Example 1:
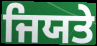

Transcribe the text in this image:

ਜਿਯਤੇ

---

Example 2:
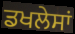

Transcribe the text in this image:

ਡਖਲੇਸਾਂ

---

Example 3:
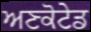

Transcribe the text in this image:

ਅਣਕੋਟੇਡ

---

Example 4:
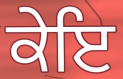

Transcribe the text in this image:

ਕੇਇ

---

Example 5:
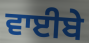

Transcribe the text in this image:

ਵਾਈਬੇ